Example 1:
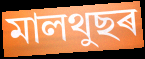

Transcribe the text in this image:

মালথুছৰ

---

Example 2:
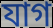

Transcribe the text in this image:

যাগ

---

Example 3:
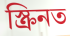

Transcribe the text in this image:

স্ক্ৰিনত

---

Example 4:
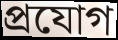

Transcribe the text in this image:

প্ৰযোগ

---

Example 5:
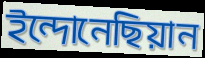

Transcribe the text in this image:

ইন্দোনেছিয়ান